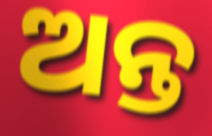
ଅନ୍ତ